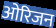
ओरिजन